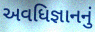
અવધિજ્ઞાનનું